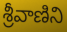
శ్రీవాణిని